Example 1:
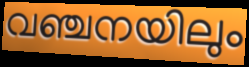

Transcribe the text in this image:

വഞ്ചനയിലും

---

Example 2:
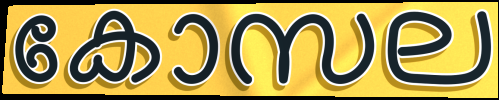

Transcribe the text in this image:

കോസല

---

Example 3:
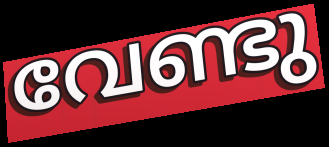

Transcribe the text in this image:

വേണ്ടു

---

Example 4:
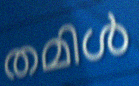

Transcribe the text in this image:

തമിൾ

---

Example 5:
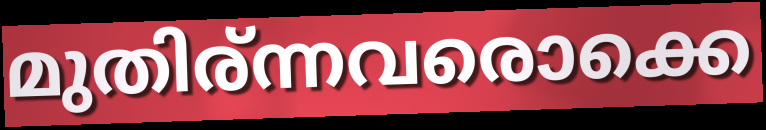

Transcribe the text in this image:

മുതിര്ന്നവരൊക്കെ